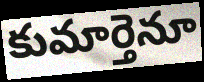
కుమార్తెనూ